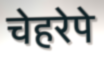
चेहरेपे